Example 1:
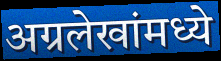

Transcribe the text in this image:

अग्रलेखांमध्ये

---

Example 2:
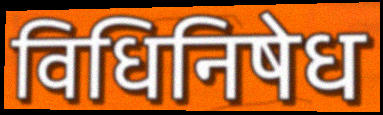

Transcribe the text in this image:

विधिनिषेध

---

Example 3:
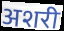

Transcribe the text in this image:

अशरी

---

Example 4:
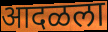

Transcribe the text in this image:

आदळला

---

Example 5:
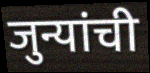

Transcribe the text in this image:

जुन्यांची